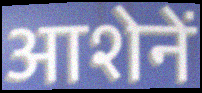
आशेनें